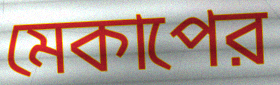
মেকাপের